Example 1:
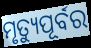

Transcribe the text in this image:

ମୃତ୍ୟୁପୂର୍ବର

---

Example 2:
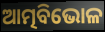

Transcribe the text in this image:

ଆତ୍ମବିଭୋଳ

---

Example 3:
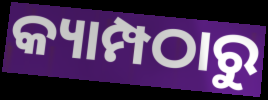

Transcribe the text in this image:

କ୍ୟାମ୍ପଠାରୁ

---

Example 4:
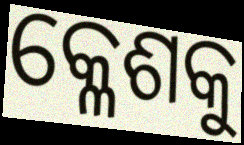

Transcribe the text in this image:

କ୍ଳେଶକୁ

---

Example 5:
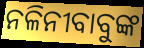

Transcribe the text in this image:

ନଳିନୀବାବୁଙ୍କ